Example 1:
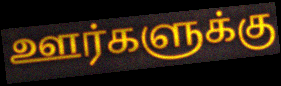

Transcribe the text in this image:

ஊர்களுக்கு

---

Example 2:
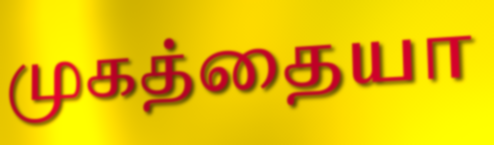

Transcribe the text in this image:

முகத்தையா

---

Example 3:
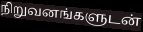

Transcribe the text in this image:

நிறுவனங்களுடன்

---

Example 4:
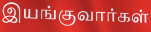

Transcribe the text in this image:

இயங்குவார்கள்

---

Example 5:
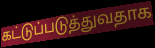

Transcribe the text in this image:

கட்டுப்படுத்துவதாக